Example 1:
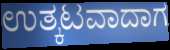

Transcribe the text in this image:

ಉತ್ಕಟವಾದಾಗ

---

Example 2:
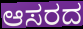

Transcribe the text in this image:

ಆಸರದ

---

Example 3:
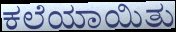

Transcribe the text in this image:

ಕಲೆಯಾಯಿತು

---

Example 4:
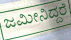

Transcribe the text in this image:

ಜಮೀನಿದ್ದರೆ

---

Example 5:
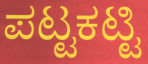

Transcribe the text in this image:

ಪಟ್ಟಕಟ್ಟಿ